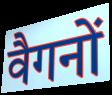
वैगनों